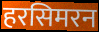
हरसिमरन